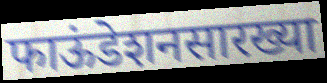
फाऊंडेशनसारख्या